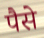
पैसे